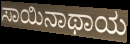
ಸಾಯಿನಾಥಾಯ